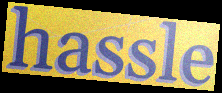
hassle